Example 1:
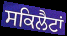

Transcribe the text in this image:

ਸਕਿਲੈਟਾਂ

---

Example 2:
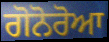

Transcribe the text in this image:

ਗੋਨੋਰੋਆ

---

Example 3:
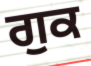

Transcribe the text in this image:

ਗੁਕ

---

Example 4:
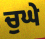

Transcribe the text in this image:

ਚੁਘੇ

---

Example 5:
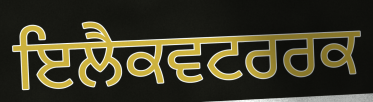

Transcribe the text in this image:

ਇਲੈਕਵਟਰਰਕ